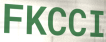
FKCCI